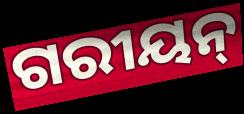
ଗରୀୟନ୍